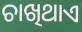
ଚାଖିଥାଏ